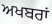
ਅਖਬਰਾਂ